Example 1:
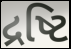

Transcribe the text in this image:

દ્રષ્ટિ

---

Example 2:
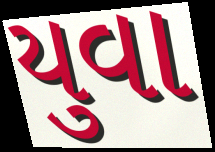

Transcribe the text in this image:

યુવા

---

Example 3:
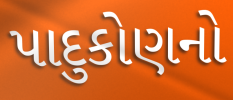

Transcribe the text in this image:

પાદુકોણનો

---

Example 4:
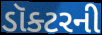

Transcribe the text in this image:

ડૉક્ટરની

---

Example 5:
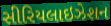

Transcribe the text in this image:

સીરિયલાઇઝેશન